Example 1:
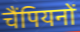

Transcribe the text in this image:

चैंपियनों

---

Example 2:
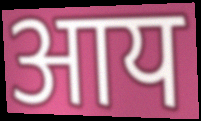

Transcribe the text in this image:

आय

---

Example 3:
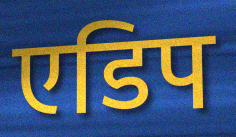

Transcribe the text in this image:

एडिप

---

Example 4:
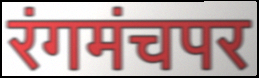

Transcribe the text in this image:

रंगमंचपर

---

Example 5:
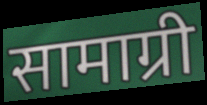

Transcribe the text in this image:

सामाग्री